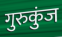
गुरुकुंज